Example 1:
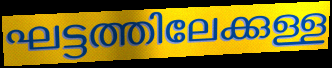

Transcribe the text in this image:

ഘട്ടത്തിലേക്കുള്ള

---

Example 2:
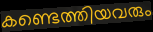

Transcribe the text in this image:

കണ്ടെത്തിയവരും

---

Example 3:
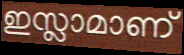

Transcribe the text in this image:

ഇസ്ലാമാണ്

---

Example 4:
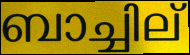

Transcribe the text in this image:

ബാച്ചില്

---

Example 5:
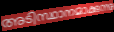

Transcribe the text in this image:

അടിസ്ഥാനമാക്കുന്നു